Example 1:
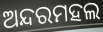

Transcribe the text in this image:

ଅନ୍ଦରମହଲ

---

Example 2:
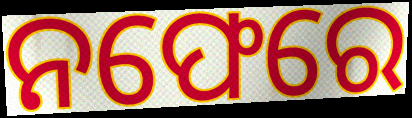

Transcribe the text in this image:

ନଫେରେ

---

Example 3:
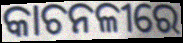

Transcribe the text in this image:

କାଚନଳୀରେ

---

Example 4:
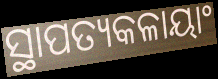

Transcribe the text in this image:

ସ୍ଥାପତ୍ୟକଳାୟାଂ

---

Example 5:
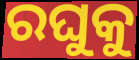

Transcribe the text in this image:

ରଘୁକୁ